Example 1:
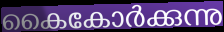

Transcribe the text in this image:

കൈകോർക്കുന്നു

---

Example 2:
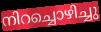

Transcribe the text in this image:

നിറച്ചൊഴിച്ചു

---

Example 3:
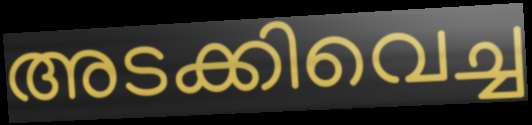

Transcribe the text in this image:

അടക്കിവെച്ച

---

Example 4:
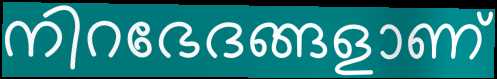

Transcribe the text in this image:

നിറഭേദങ്ങളാണ്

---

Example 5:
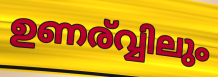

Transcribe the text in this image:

ഉണര്വ്വിലും